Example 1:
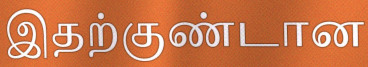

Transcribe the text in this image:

இதற்குண்டான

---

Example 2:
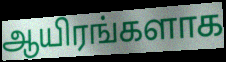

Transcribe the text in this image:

ஆயிரங்களாக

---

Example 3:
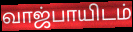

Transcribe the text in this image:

வாஜ்பாயிடம்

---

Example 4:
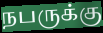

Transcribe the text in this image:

நபருக்கு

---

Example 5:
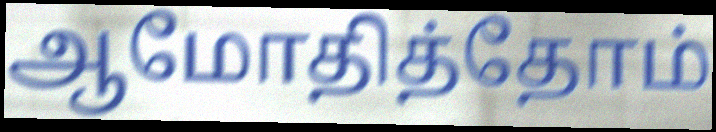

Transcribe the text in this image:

ஆமோதித்தோம்